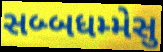
સબ્બધમ્મેસુ